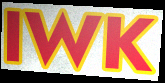
IWK